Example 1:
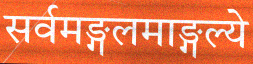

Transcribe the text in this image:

सर्वमङ्गलमाङ्गल्ये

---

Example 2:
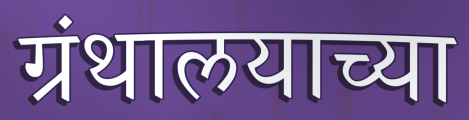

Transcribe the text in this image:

ग्रंथालयाच्या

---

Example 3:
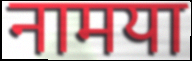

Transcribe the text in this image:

नामया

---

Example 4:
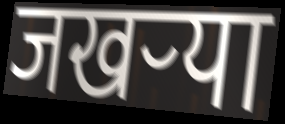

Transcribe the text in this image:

जखऱ्या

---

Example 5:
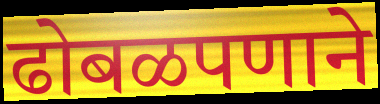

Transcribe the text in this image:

ढोबळपणाने